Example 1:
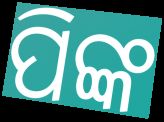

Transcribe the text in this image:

ପିଙ୍କ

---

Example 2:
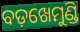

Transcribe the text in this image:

ବଡ଼ଖେମୁଣ୍ଡି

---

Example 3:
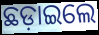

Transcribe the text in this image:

ଛଡ଼ାଇଲେ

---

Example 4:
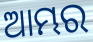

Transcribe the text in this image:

ଆମ୍ଭର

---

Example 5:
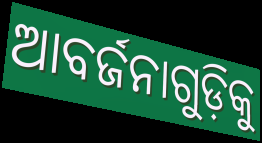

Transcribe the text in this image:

ଆବର୍ଜନାଗୁଡ଼ିକୁ